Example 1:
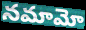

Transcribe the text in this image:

నమామో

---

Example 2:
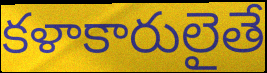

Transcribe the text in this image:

కళాకారులైతే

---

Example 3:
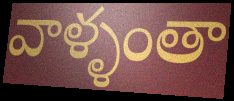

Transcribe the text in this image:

వాళ్ళంతా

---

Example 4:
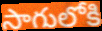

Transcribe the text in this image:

సాగులోకి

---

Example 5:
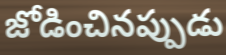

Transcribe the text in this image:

జోడించినప్పుడు